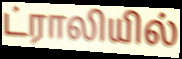
ட்ராலியில்